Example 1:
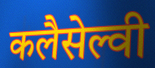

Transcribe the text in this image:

कलैसेल्वी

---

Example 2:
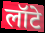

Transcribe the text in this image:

लॉटे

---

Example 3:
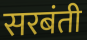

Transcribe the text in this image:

सरबंती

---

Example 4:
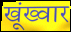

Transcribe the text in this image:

खूंख्वार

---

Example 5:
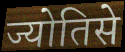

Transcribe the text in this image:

ज्योतिसे